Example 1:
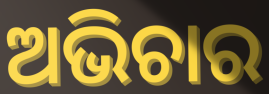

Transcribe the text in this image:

ଅଭିଚାର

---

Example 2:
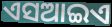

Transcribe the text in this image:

ଏସଆଇଏ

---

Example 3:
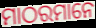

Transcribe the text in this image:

ମାଠରମାନେ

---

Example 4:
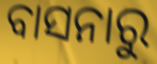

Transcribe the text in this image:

ବାସନାରୁ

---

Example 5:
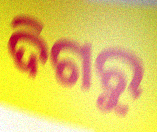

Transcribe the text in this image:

ଦିଗରୁ